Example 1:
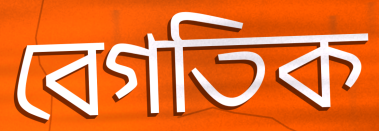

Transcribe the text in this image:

বেগতিক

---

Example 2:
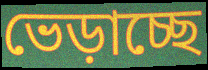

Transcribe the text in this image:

ভেড়াচ্ছে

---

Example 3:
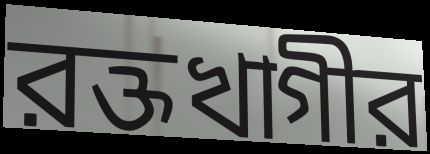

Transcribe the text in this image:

রক্তখাগীর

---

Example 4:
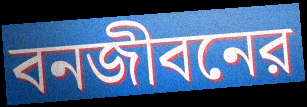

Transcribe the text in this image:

বনজীবনের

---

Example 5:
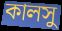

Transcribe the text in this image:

কালসু